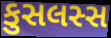
કુસલસ્સ